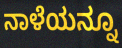
ನಾಳೆಯನ್ನೂ